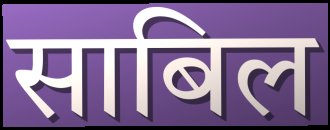
साबिल